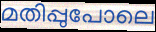
മതിപ്പുപോലെ